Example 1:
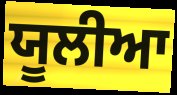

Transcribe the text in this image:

ਯੂਲੀਆ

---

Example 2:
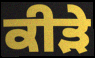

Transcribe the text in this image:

ਕੀੜੇ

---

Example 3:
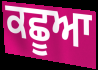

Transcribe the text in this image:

ਕਛੂਆ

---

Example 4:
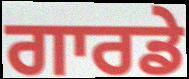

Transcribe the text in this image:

ਗਾਰਡੇ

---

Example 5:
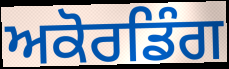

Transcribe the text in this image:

ਅਕੋਰਡਿੰਗ